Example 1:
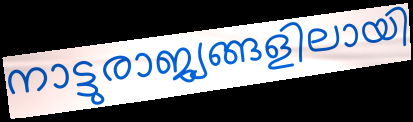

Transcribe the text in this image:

നാട്ടുരാജ്യങ്ങളിലായി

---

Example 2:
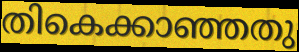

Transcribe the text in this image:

തികെക്കാഞ്ഞതു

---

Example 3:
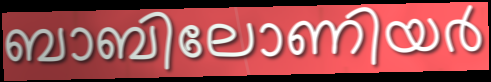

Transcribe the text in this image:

ബാബിലോണിയർ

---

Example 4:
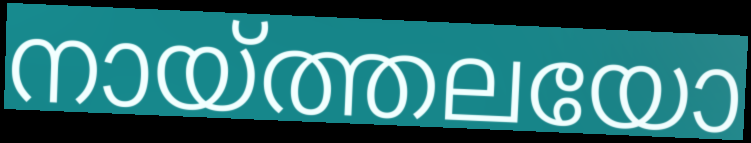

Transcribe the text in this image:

നായ്ത്തലയോ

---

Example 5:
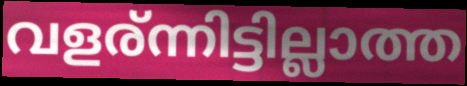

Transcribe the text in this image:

വളര്ന്നിട്ടില്ലാത്ത